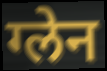
ग्लेन